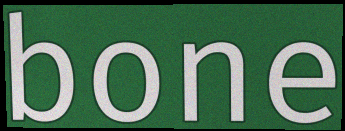
bone